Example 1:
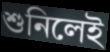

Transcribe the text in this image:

শুনিলেই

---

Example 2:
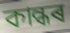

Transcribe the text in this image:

কান্ধৰ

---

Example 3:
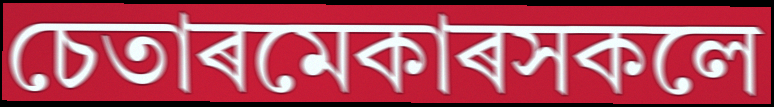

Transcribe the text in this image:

চেতাৰমেকাৰসকলে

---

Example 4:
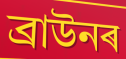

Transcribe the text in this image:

ব্ৰাউনৰ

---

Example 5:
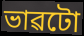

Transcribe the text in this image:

ভাৱটো